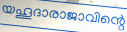
യഹൂദാരാജാവിന്റെ